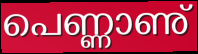
പെണ്ണാണു്